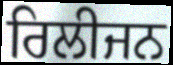
ਰਿਲੀਜਨ